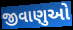
જીવાણુઓ